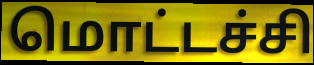
மொட்டச்சி